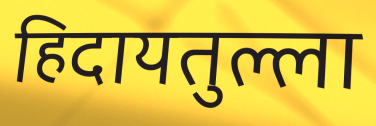
हिदायतुल्ला